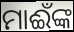
ମାଈଁଙ୍କ